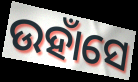
ଉହାଁସେ